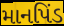
માનપિંડ